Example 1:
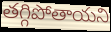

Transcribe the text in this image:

తగ్గిపోతాయని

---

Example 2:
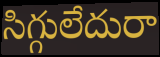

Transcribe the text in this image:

సిగ్గులేదురా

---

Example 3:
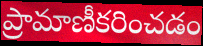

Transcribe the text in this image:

ప్రామాణీకరించడం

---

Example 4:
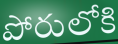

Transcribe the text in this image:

పోరులోకి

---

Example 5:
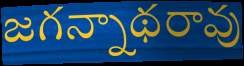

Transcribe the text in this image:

జగన్నాథరావు